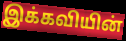
இக்கவியின்